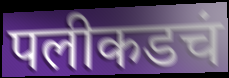
पलीकडचं